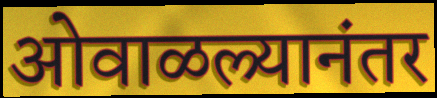
ओवाळल्यानंतर